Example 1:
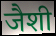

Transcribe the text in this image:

जैशी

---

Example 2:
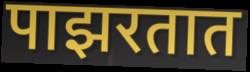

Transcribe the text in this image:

पाझरतात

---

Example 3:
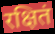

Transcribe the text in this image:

रक्षितं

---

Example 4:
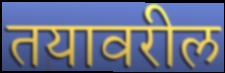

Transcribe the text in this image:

तयावरील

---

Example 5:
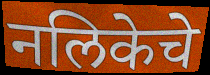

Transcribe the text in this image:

नलिकेचे